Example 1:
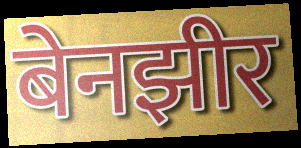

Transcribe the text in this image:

बेनझीर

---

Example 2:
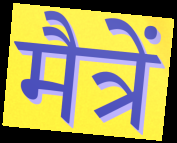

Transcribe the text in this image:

मैत्रें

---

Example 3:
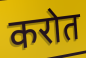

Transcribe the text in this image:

करोत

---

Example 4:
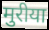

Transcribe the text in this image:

मुरीया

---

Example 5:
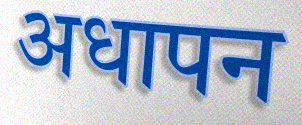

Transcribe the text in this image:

अधापन